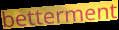
betterment